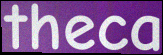
theca